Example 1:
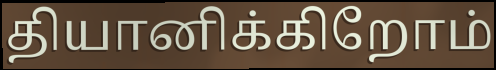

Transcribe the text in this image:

தியானிக்கிறோம்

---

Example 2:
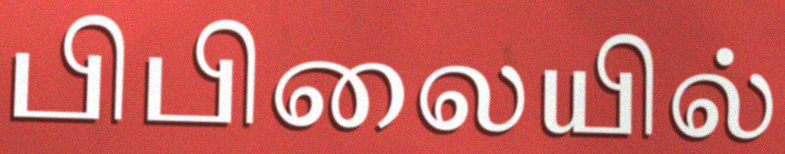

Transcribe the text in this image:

பிபிலையில்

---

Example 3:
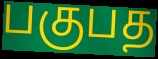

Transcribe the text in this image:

பகுபத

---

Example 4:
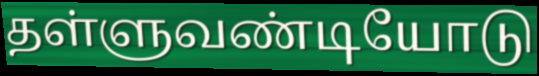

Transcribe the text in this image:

தள்ளுவண்டியோடு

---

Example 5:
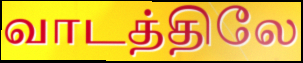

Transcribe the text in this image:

வாடத்திலே